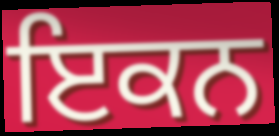
ਇਕਨ